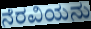
ನೆರವಿಯನು